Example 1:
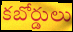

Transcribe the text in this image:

కబోర్డులు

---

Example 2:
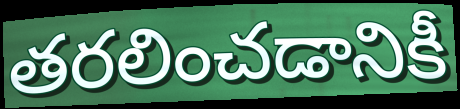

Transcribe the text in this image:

తరలించడానికీ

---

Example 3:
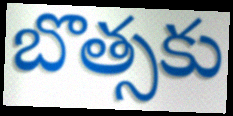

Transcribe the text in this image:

బొత్సకు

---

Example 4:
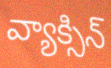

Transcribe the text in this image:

వ్యాక్సిన్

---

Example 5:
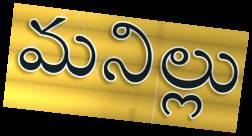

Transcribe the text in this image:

మనిల్లు